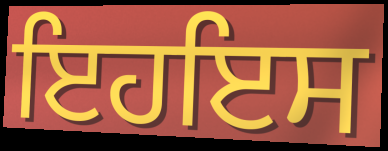
ਇਹਇਸ